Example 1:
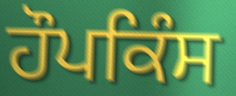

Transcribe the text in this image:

ਹੌਪਕਿੰਸ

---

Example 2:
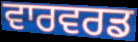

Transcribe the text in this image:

ਵਾਰਵਰਡ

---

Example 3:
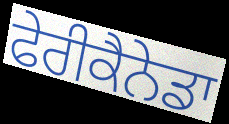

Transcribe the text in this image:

ਫੇਰੀਕੈਨੇਡਾ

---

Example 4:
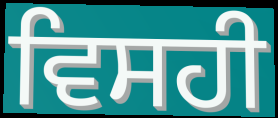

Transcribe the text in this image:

ਵਿਸਹੀ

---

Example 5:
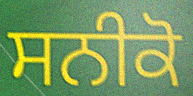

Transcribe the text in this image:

ਸਨੀਕੋ